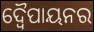
ଦ୍ୱୈପାୟନର